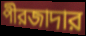
পীরজাদার